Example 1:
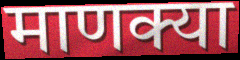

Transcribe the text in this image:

माणक्या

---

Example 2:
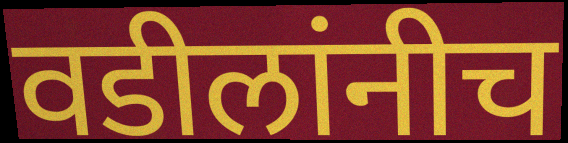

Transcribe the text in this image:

वडीलांनीच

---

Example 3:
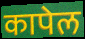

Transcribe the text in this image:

कापेल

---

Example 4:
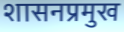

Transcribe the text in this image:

शासनप्रमुख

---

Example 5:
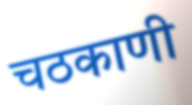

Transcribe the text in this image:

चठकाणी